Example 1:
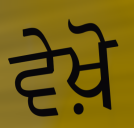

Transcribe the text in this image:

ਵੇਖ਼ੋ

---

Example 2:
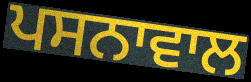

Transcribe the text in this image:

ਪਸਨਾਵਾਲ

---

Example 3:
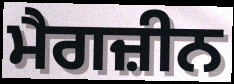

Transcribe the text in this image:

ਮੈਗਜ਼ੀਨ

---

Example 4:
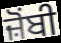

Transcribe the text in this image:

ਜ਼ੋਂਬੀ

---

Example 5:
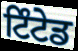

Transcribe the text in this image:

ਟਿੰਟੇਡ